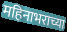
महिनाभराच्या